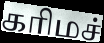
கரிமச்